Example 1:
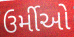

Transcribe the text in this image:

ઉર્મીઓ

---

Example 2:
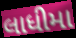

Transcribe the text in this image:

લાધીમા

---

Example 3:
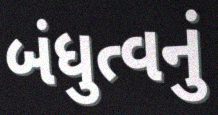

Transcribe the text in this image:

બંધુત્વનું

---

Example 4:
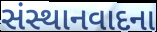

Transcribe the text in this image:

સંસ્થાનવાદના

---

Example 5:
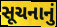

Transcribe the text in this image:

સૂચનાનું